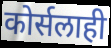
कोर्सलाही